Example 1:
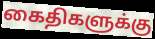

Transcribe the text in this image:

கைதிகளுக்கு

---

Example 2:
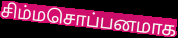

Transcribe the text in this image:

சிம்மசொப்பனமாக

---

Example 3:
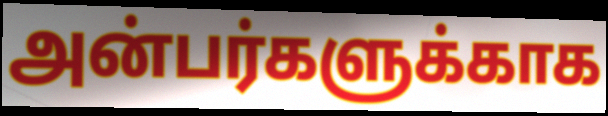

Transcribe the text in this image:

அன்பர்களுக்காக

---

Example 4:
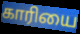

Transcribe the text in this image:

காரியை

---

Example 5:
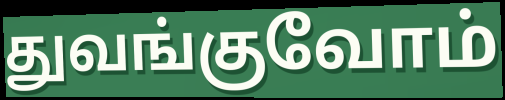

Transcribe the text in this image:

துவங்குவோம்